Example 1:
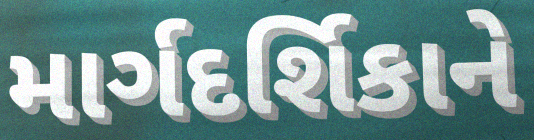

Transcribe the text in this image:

માર્ગદર્શિકાને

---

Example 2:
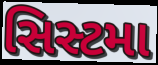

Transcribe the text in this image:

સિસ્ટમા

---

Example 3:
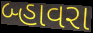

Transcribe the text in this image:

બ્હાવરા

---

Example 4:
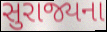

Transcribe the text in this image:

સુરાજ્યના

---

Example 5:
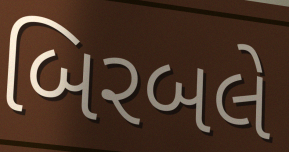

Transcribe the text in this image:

બિરબલે